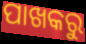
ପାଖକରୁ